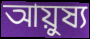
আয়ুষ্য